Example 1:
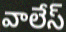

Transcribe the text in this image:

వాలేస్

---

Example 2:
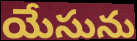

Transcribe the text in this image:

యేసును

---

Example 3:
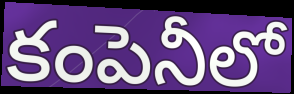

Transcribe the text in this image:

కంపెనీలో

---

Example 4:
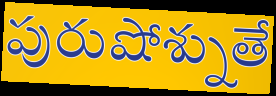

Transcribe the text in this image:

పురుషోశ్నుతే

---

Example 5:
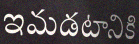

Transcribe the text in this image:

ఇమడటానికి